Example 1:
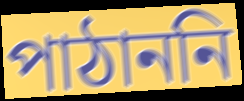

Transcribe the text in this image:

পাঠাননি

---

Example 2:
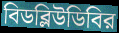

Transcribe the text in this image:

বিডব্লিউডিবির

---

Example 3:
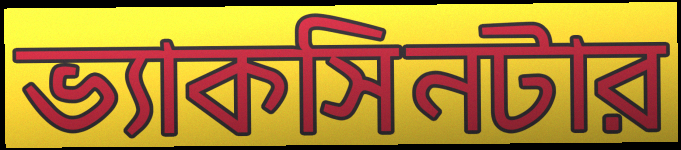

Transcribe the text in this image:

ভ্যাকসিনটার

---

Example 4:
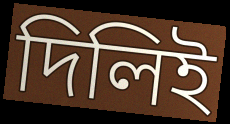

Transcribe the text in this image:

দিলিই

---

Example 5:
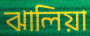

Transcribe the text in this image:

ঝালিয়া